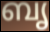
ബൃ